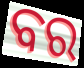
ବର